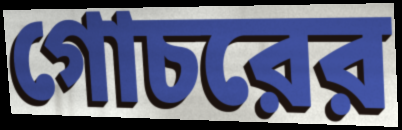
গোচরের